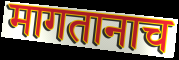
मागतानाच